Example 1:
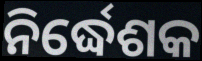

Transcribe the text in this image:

ନିର୍ଦ୍ଧେଶକ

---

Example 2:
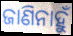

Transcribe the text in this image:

ଜାଣିନାହୁଁ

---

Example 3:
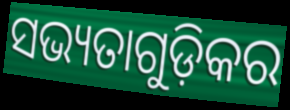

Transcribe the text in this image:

ସଭ୍ୟତାଗୁଡ଼ିକର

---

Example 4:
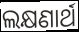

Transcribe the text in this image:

ଲକ୍ଷଣାର୍ଥ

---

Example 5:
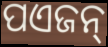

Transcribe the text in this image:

ପଏଜନ୍